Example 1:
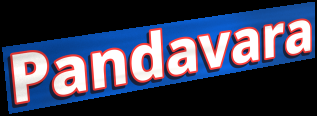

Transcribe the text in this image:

Pandavara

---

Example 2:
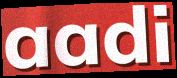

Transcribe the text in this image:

aadi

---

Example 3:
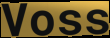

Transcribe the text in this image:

Voss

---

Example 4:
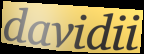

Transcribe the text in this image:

davidii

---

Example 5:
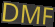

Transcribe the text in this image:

DMF